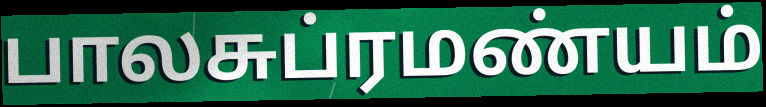
பாலசுப்ரமண்யம்